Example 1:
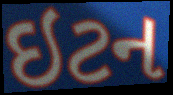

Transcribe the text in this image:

ઇટન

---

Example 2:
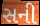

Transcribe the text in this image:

સની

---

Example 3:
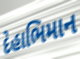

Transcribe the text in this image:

દેહાભિમાન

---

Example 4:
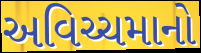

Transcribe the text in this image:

અવિચ્ચમાનો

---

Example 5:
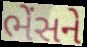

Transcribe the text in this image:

ભેંસને